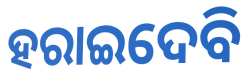
ହରାଇଦେବି